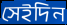
সেইদিন